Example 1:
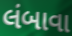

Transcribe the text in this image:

લંબાવા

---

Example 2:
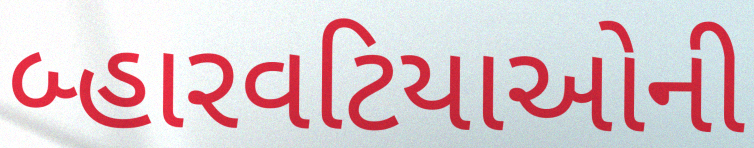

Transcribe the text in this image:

બ્હારવટિયાઓની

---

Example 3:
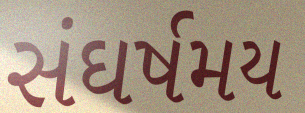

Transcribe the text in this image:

સંઘર્ષમય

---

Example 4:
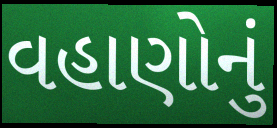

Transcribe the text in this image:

વહાણોનું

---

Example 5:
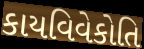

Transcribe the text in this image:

કાયવિવેકોતિ